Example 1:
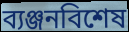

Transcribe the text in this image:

ব্যঞ্জনবিশেষ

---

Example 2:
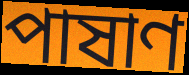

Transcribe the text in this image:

পাষাণ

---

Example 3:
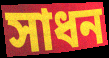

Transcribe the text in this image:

সাধন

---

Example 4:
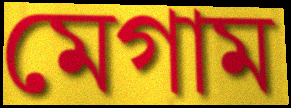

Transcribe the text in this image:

মেগাম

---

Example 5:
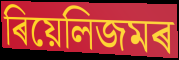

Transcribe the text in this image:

ৰিয়েলিজমৰ